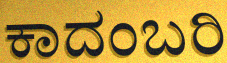
ಕಾದಂಬರಿ